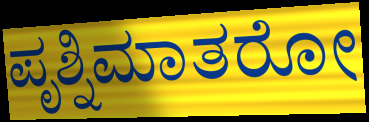
ಪೃಶ್ನಿಮಾತರೋ